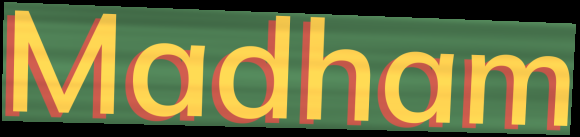
Madham